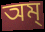
অম্